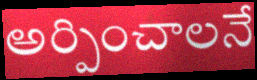
అర్పించాలనే